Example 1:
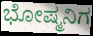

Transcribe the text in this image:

ಭೋಷ್ಮನಿಗ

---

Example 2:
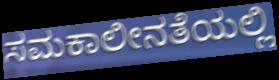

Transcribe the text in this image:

ಸಮಕಾಲೀನತೆಯಲ್ಲಿ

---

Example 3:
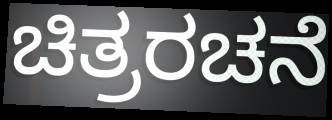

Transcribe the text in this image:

ಚಿತ್ರರಚನೆ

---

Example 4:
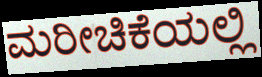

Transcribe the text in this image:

ಮರೀಚಿಕೆಯಲ್ಲಿ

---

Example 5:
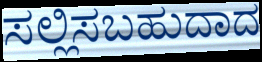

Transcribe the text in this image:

ಸಲ್ಲಿಸಬಹುದಾದ